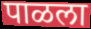
पाळला